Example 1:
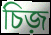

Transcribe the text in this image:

চিজ়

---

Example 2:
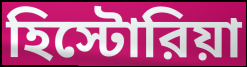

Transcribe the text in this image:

হিস্টোরিয়া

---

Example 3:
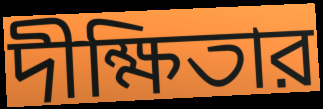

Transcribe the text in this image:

দীক্ষিতার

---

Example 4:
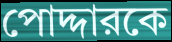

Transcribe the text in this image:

পোদ্দারকে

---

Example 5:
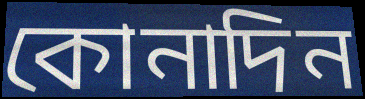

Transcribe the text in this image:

কোনাদিন